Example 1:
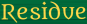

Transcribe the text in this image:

Residue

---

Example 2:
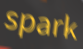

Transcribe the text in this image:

spark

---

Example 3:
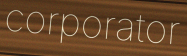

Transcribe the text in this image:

corporator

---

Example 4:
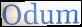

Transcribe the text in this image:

Odum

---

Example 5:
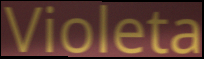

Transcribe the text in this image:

Violeta